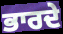
ਭਾਰਦੇ